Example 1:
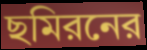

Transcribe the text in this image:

ছমিরনের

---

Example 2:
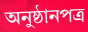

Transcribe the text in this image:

অনুষ্ঠানপত্র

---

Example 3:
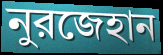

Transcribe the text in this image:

নুরজেহান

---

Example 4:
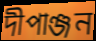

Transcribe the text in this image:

দীপাঞ্জন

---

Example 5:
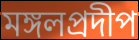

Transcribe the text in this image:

মঙ্গলপ্রদীপ